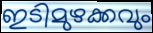
ഇടിമുഴക്കവും